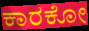
ಕಾರಕೋ